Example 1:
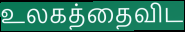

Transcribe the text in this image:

உலகத்தைவிட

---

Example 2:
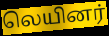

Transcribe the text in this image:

லெயினர்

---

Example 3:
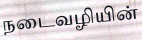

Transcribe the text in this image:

நடைவழியின்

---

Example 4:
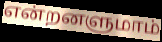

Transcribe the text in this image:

என்றனளுமாம்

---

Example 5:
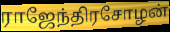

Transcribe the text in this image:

ராஜேந்திரசோழன்